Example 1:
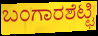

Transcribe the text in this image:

ಬಂಗಾರಶೆಟ್ಟಿ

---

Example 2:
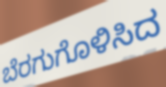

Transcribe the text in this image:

ಬೆರಗುಗೊಳಿಸಿದ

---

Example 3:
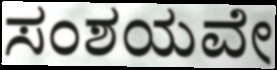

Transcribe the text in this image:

ಸಂಶಯವೇ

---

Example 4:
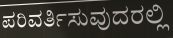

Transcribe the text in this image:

ಪರಿವರ್ತಿಸುವುದರಲ್ಲಿ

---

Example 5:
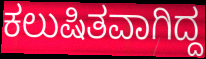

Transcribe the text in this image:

ಕಲುಷಿತವಾಗಿದ್ದ